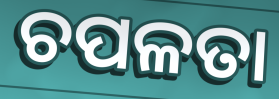
ଚପଳତା